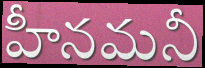
హీనమనీ